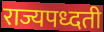
राज्यपध्दती